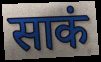
साकं